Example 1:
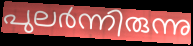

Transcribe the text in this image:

പുലർന്നിരുന്നു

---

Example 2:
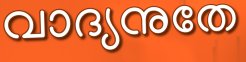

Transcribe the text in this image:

വാദ്യനുതേ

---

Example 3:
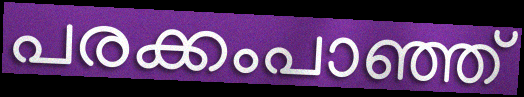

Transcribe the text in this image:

പരക്കംപാഞ്ഞ്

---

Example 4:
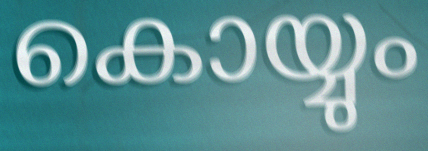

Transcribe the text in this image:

കൊയ്യും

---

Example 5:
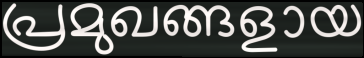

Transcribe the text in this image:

പ്രമുഖങ്ങളായ